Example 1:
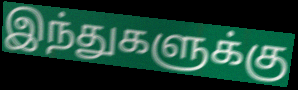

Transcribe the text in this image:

இந்துகளுக்கு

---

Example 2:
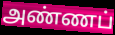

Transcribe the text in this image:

அண்ணப்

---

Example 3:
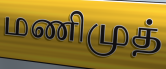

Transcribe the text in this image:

மணிமுத்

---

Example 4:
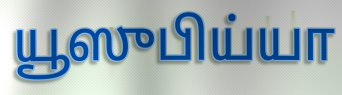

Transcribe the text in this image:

யூஸுபிய்யா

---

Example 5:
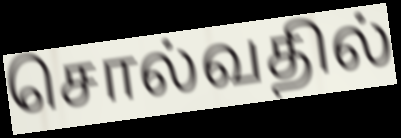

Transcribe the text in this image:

சொல்வதில்